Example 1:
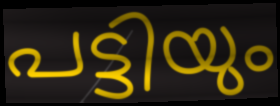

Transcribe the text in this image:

പട്ടിയും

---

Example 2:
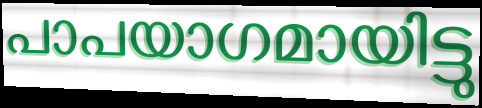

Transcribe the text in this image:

പാപയാഗമായിട്ടു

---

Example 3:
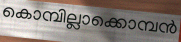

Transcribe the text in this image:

കൊമ്പില്ലാക്കൊമ്പൻ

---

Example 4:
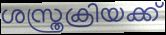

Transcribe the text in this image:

ശസ്ത്രക്രിയക്ക്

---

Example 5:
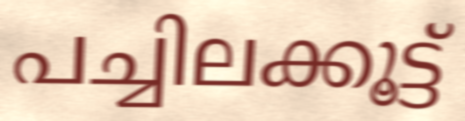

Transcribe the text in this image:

പച്ചിലക്കൂട്ട്